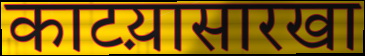
काटय़ासारखा